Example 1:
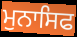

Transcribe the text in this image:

ਮੁਨਾਸਿਫ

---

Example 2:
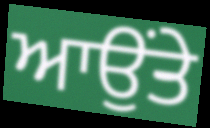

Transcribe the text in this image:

ਆਉਂਤੇ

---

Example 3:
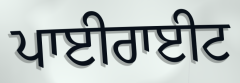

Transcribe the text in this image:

ਪਾਈਰਾਈਟ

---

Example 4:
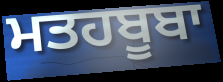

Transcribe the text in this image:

ਮਤਹਬੂਬਾ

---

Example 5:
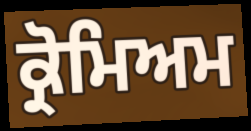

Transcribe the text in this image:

ਕ੍ਰੋਮਿਅਮ